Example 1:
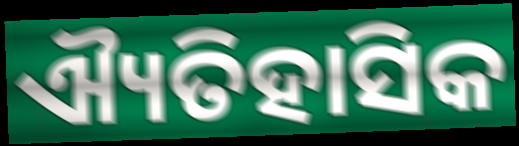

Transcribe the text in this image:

ଐ୍ୟତିହାସିକ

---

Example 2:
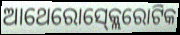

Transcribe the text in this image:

ଆଥେରୋସ୍କ୍ଲେରୋଟିକ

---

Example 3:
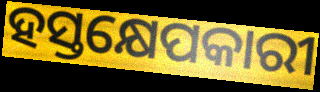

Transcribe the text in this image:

ହସ୍ତକ୍ଷେପକାରୀ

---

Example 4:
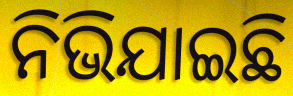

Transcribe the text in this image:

ନିଭିଯାଇଛି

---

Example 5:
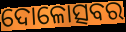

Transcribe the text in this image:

ଦୋଳୋତ୍ସବର